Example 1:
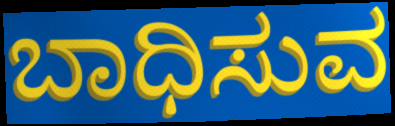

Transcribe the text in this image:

ಬಾಧಿಸುವ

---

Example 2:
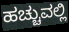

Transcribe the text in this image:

ಹಚ್ಚುವಲ್ಲಿ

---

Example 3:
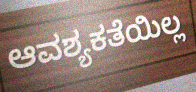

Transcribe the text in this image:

ಆವಶ್ಯಕತೆಯಿಲ್ಲ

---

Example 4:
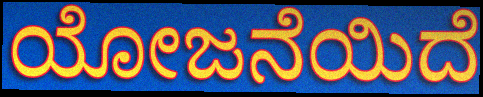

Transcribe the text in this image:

ಯೋಜನೆಯಿದೆ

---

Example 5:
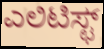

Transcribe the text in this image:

ಎಲಿಟಿಸ್ಟ್